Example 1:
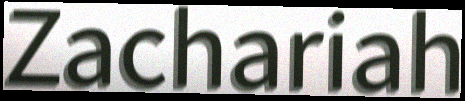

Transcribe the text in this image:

Zachariah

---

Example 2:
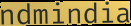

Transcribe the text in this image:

ndmindia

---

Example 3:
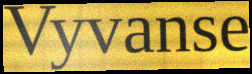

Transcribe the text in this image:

Vyvanse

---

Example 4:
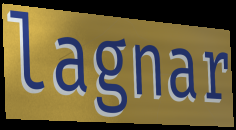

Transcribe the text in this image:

lagnar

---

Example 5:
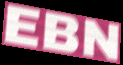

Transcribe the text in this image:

EBN